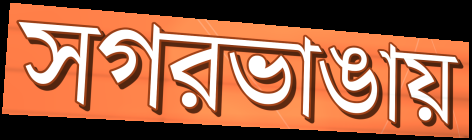
সগরভাঙায়